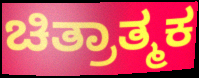
ಚಿತ್ರಾತ್ಮಕ